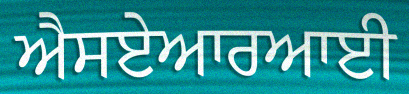
ਐਸਏਆਰਆਈ